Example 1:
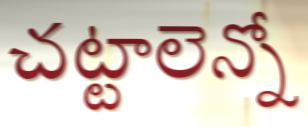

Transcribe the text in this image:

చట్టాలెన్నో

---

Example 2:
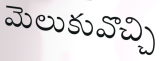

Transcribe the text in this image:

మెలుకువొచ్చి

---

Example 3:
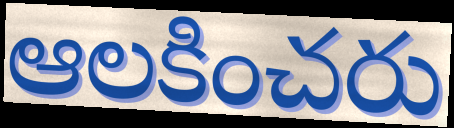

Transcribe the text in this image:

ఆలకించరు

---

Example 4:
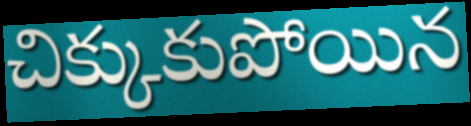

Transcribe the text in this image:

చిక్కుకుపోయిన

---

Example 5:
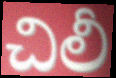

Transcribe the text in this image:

చిలీ